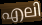
എലി